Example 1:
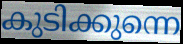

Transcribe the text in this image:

കുടിക്കുന്നെ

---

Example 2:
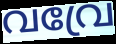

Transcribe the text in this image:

വവ്രേ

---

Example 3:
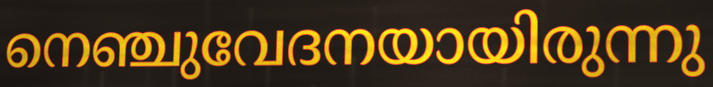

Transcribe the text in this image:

നെഞ്ചുവേദനയായിരുന്നു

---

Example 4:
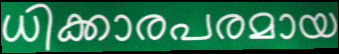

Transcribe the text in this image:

ധിക്കാരപരമായ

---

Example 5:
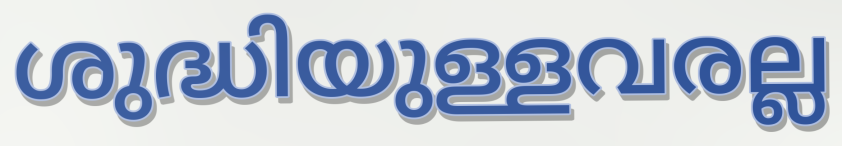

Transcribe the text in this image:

ശുദ്ധിയുള്ളവരല്ല